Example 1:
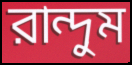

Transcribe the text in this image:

রান্দুম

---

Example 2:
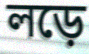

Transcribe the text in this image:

লড়ে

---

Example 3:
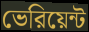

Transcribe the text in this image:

ভেরিয়েন্ট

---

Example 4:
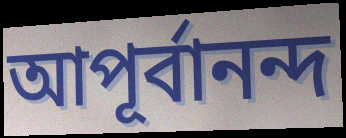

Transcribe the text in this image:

আপূর্বানন্দ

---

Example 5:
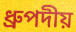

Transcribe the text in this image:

ধ্রুপদীয়